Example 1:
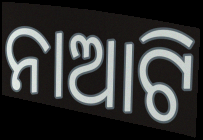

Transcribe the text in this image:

ନାଆଟି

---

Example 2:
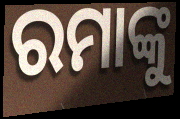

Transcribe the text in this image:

ରମାଙ୍କୁ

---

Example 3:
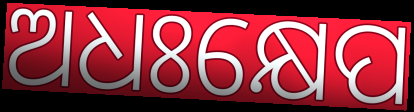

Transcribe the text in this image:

ଅଧଃକ୍ଷେପ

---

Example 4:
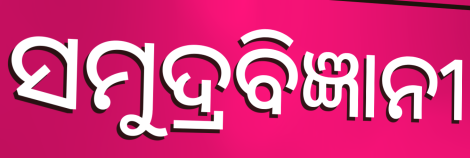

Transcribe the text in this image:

ସମୁଦ୍ରବିଜ୍ଞାନୀ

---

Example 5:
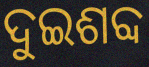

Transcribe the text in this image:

ଦୁଇଶବ୍ଦ